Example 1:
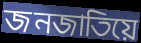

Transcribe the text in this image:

জনজাতিয়ে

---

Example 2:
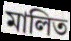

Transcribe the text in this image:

মালিত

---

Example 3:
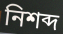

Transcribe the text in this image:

নিশব্দ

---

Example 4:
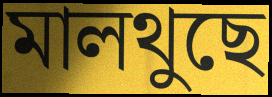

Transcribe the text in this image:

মালথুছে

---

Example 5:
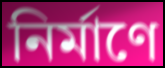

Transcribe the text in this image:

নিৰ্মাণে